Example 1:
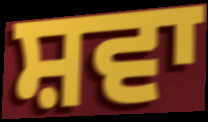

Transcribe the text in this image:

ਸ਼ਵਾ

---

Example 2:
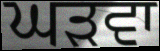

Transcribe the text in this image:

ਘੜਵਾ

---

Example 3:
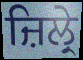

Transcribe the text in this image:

ਜ਼ਿਲ੍ਰੇ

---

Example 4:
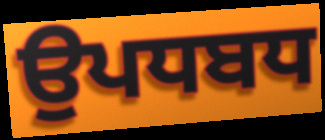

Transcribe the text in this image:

ਉਪਧਬਧ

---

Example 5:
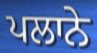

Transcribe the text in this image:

ਪਲਾਨੇ